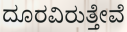
ದೂರವಿರುತ್ತೇವೆ